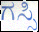
ಗಸ್ಸಿ